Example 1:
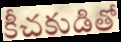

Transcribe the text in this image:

కీచకుడితో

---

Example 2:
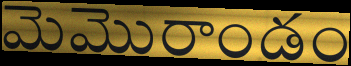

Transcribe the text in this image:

మెమొరాండం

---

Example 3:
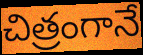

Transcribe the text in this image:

చిత్రంగానే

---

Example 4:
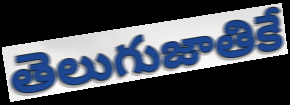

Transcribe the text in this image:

తెలుగుజాతికే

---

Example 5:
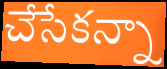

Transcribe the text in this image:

చేసేకన్నా